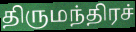
திருமந்திரச்